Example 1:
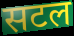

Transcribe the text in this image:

सटल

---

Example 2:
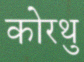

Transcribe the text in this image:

कोरथु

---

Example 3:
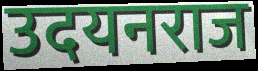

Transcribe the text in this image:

उदयनराज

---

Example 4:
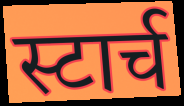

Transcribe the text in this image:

स्टार्च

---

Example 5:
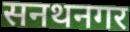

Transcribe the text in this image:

सनथनगर